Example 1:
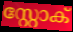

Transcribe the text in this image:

സ്റ്റോക്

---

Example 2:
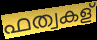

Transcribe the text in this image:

ഫത്വകള്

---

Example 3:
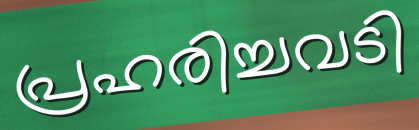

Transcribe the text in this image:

പ്രഹരിച്ചവടി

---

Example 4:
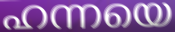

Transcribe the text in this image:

ഹന്നയെ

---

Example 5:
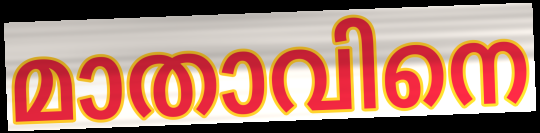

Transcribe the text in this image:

മാതാവിനെ